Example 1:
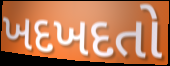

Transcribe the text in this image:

ખદખદતો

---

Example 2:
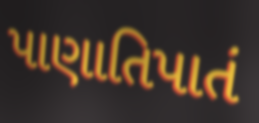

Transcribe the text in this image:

પાણાતિપાતં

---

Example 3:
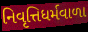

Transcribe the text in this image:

નિવૃત્તિધર્મવાળા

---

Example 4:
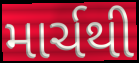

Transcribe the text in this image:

માર્ચથી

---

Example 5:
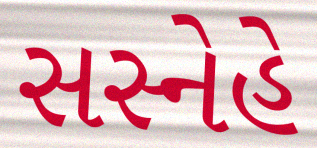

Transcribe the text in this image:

સસ્નેહે